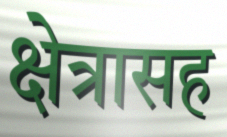
क्षेत्रासह